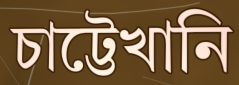
চাট্টেখানি